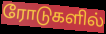
ரோடுகளில்